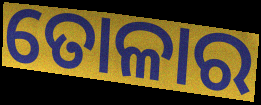
ତୋଳାର